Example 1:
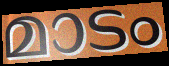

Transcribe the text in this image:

മാടം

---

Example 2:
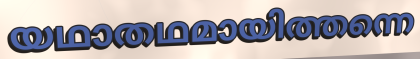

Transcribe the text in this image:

യഥാതഥമായിത്തന്നെ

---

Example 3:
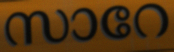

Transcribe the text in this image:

സാറേ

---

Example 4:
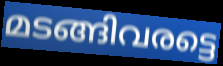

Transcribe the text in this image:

മടങ്ങിവരട്ടെ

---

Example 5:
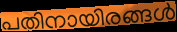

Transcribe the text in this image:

പതിനായിരങ്ങൾ